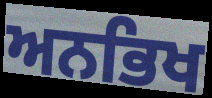
ਅਨਭਿਖ